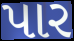
પાર